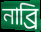
নাব্রি